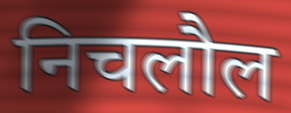
निचलौल